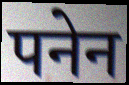
पनेन